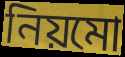
নিয়মো